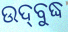
ଉଦ୍‍ବୁଦ୍ଧ